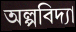
অল্পবিদ্যা